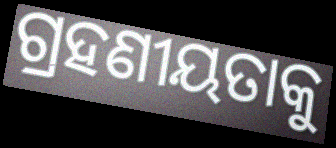
ଗ୍ରହଣୀୟତାକୁ